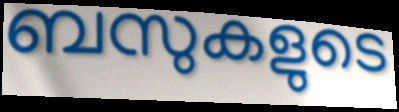
ബസുകളുടെ